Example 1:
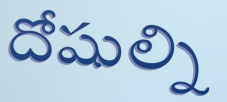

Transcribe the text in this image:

దోషుల్ని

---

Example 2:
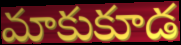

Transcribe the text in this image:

మాకుకూడ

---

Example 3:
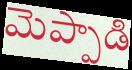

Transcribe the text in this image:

మెప్పాడి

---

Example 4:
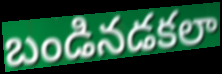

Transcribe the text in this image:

బండినడకలా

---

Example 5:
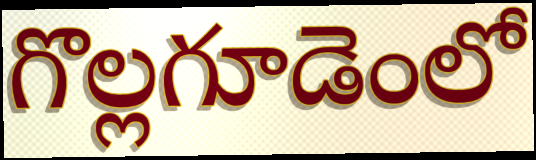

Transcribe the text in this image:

గొల్లగూడెంలో